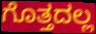
ಗೊತ್ತದಲ್ಲ